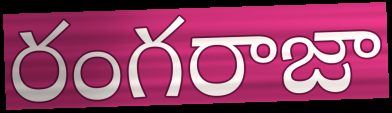
రంగరాజా